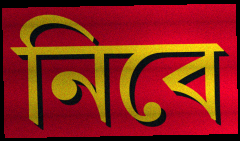
নিবে